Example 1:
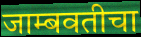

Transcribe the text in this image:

जाम्बवतीचा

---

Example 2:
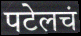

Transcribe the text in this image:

पटेलचं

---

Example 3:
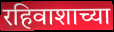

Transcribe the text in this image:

रहिवाशाच्या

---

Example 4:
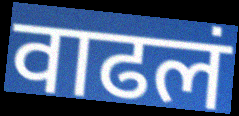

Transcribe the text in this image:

वाढलं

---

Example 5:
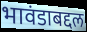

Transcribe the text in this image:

भावंडाबद्दल